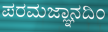
ಪರಮಜ್ಞಾನದಿಂ